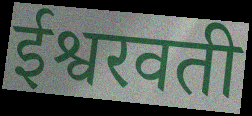
ईश्वरवती